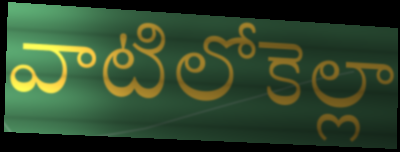
వాటిలోకెల్లా